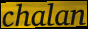
chalan